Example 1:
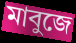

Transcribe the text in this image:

মাবুজে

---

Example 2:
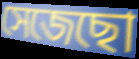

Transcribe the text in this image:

সেজেছো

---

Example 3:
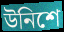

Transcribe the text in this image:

উনিশে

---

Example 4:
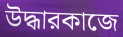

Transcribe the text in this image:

উদ্ধারকাজে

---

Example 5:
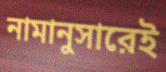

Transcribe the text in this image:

নামানুসারেই